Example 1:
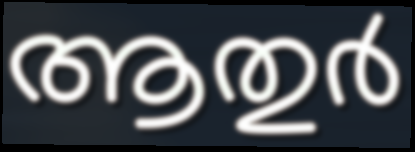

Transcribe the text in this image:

ആതുർ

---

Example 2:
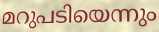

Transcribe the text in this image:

മറുപടിയെന്നും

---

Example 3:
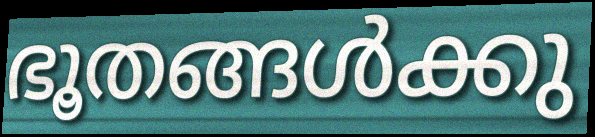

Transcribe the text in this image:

ഭൂതങ്ങൾക്കു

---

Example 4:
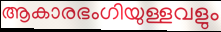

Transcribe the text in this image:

ആകാരഭംഗിയുള്ളവളും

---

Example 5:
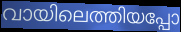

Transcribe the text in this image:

വായിലെത്തിയപ്പോ